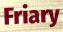
Friary